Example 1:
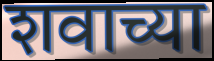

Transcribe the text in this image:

शवाच्या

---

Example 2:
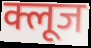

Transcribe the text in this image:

क्लूज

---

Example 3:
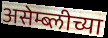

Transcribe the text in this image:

असेम्ब्लीच्या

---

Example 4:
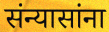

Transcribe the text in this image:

संन्यासांना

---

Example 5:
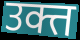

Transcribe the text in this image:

उक्त